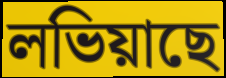
লভিয়াছে